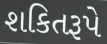
શકિતરૂપે